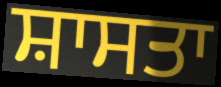
ਸ਼ਾਸਤਾ